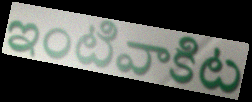
ఇంటివాకిట